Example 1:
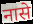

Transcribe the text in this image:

नासे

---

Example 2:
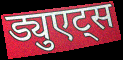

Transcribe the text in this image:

ड्युएट्स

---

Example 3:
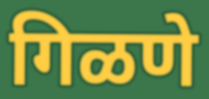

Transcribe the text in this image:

गिळणे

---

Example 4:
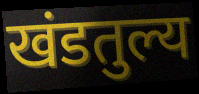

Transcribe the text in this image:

खंडतुल्य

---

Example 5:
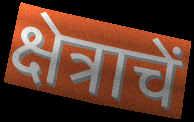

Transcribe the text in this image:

क्षेत्राचें